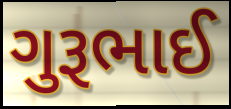
ગુરૂભાઈ